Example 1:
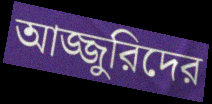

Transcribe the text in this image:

আজ্জুরিদের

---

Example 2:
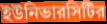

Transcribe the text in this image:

ইউনিভারসিটির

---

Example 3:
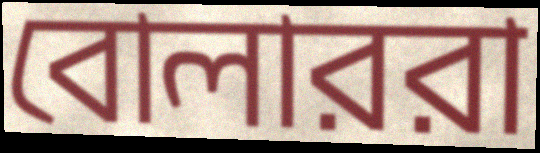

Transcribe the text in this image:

বোলাররা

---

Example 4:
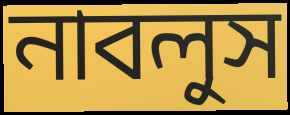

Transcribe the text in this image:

নাবলুস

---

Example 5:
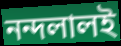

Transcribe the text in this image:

নন্দলালই